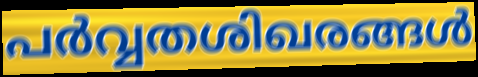
പർവ്വതശിഖരങ്ങൾ